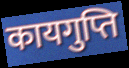
कायगुप्ति